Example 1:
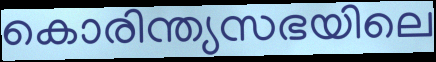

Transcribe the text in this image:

കൊരിന്ത്യസഭയിലെ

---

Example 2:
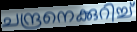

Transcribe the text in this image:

ചന്ദ്രനെക്കുറിച്ച്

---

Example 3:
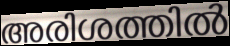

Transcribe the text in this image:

അരിശത്തിൽ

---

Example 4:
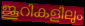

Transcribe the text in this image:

ജൂറികളിലും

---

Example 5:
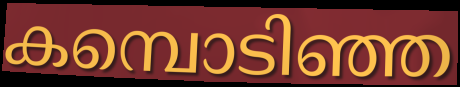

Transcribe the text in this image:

കമ്പൊടിഞ്ഞ